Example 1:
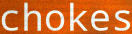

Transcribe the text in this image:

chokes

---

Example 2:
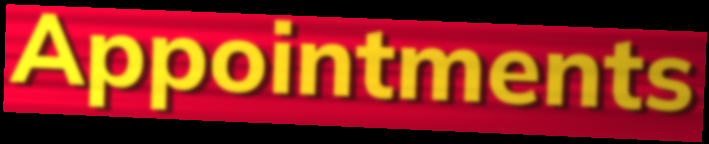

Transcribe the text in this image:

Appointments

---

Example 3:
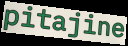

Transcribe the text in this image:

pitajine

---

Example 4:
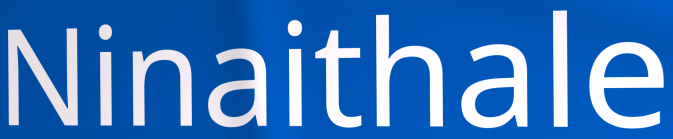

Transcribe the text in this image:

Ninaithale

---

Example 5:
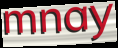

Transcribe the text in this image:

mnay